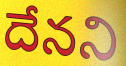
దేనని